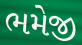
ભમેજી